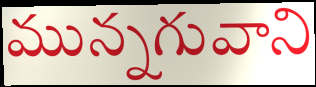
మున్నగువాని